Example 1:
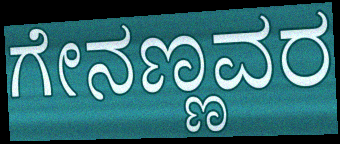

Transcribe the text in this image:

ಗೇನಣ್ಣವರ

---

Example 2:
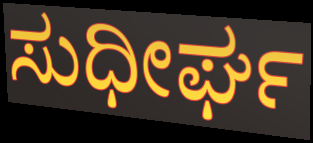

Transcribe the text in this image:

ಸುಧೀರ್ಘ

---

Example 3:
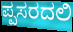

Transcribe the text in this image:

ಪ್ಪಸರದಲಿ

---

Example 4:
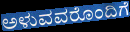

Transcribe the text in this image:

ಅಳುವವರೊಂದಿಗೆ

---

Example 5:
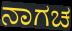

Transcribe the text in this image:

ನಾಗಚ